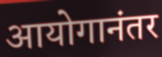
आयोगानंतर